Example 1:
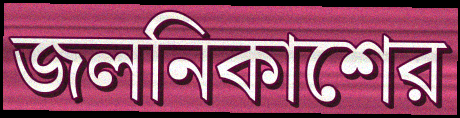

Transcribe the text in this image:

জলনিকাশের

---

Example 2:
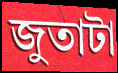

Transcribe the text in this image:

জুতাটা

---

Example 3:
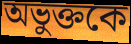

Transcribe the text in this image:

অভুক্তকে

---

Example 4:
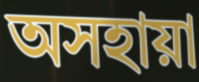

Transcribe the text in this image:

অসহায়া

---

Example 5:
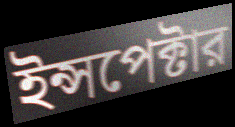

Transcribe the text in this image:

ইন্সপেক্টার